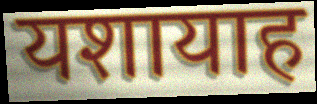
यशायाह